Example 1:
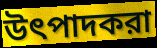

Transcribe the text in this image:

উৎপাদকরা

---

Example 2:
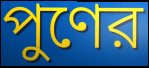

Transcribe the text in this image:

পুণের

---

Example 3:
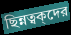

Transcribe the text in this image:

ছিন্নত্বক্দের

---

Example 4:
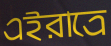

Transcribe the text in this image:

এইরাত্রে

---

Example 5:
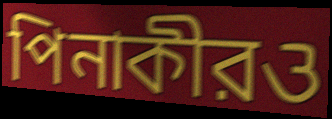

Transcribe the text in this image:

পিনাকীরও